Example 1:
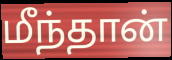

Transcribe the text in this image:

மீந்தான்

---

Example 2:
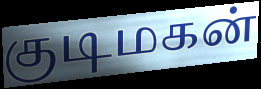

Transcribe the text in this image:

குடிமகன்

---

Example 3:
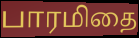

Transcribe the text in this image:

பாரமிதை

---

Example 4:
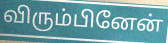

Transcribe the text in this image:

விரும்பினேன்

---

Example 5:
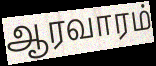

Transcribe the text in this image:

ஆரவாரம்